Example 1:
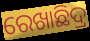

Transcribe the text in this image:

ରେଖାଛିଦ୍ର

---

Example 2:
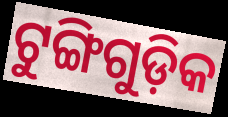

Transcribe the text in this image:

ଟୁଙ୍ଗିଗୁଡ଼ିକ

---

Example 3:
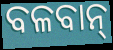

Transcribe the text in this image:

ବଳବାନ୍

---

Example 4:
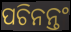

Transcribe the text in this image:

ପଚିନନ୍ତଂ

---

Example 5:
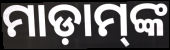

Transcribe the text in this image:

ମାଡ଼ାମ୍‌ଙ୍କ